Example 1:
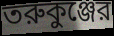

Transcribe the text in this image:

তরুকুঞ্জের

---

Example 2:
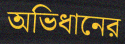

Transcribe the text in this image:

অভিধানের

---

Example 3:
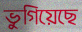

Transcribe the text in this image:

ভুগিয়েছে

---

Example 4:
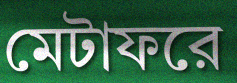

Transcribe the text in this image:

মেটাফরে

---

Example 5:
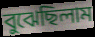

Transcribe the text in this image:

বুঝেছিলাম